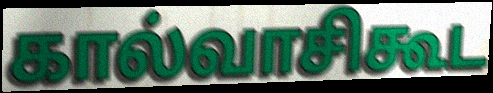
கால்வாசிகூட